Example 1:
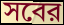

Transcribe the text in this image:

সবের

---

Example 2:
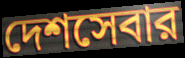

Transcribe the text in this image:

দেশসেবার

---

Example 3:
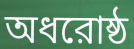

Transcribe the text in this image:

অধরোষ্ঠ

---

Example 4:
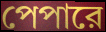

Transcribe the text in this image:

পেপারে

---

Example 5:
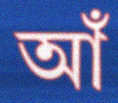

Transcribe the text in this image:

আঁ